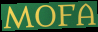
MOFA